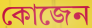
কোজেন